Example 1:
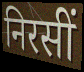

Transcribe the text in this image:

निरसीं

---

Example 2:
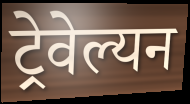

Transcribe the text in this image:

ट्रेवेल्यन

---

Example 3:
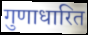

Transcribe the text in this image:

गुणाधारित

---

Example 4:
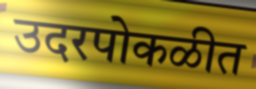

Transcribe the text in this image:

उदरपोकळीत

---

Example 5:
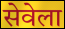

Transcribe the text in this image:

सेवेला